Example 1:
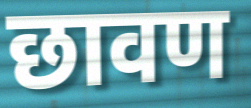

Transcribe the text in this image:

छावण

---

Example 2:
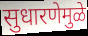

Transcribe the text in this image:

सुधारणेमुळे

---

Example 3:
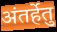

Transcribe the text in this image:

अंतर्हेतु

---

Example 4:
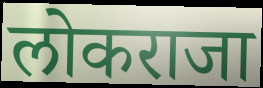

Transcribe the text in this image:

लोकराजा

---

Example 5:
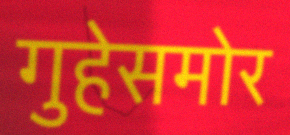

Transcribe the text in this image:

गुहेसमोर